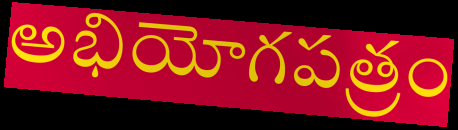
అభియోగపత్రం